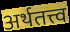
अर्थतत्त्व